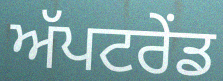
ਅੱਪਟਰੇਂਡ